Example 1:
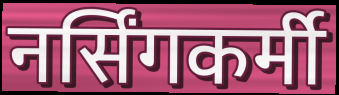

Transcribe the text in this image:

नर्सिंगकर्मी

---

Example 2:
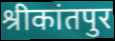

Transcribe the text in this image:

श्रीकांतपुर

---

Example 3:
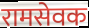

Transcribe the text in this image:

रामसेवक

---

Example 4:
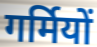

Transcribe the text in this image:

गर्मियों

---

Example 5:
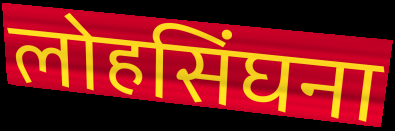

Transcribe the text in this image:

लोहसिंघना